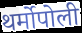
थर्मोपोली